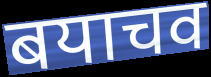
बयाचव